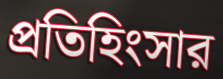
প্রতিহিংসার